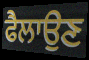
ਫੈਲਾਉਣ